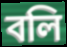
বলি